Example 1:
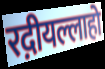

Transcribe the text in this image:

रद़ीयल्लाहो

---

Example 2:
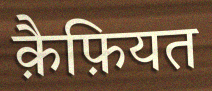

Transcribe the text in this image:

क़ैफ़ियत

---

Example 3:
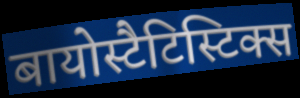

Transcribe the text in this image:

बायोस्टैटिस्टिक्स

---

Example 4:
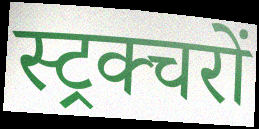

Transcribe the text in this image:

स्ट्रक्चरों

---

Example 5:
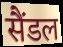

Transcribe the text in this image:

सैंडल